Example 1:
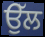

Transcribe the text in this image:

ਉੱਲ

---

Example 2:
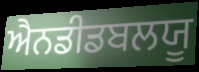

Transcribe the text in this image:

ਐਨਡੀਡਬਲਯੂ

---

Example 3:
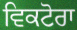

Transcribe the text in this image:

ਵਿਕਟੋਰਾ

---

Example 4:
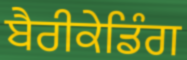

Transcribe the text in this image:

ਬੈਰੀਕੇਡਿੰਗ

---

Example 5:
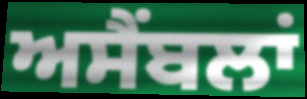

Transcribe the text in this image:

ਅਸੈਂਬਲਾਂ